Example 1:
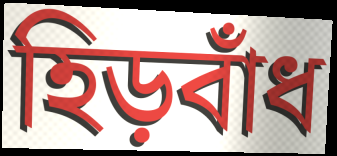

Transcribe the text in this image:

হিড়বাঁধ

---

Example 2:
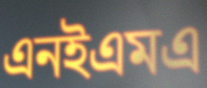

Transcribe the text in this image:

এনইএমএ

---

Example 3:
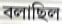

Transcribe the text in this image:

বলাছিল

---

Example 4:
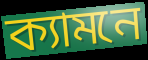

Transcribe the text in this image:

ক্যামনে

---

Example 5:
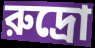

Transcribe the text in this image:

রুদ্রো